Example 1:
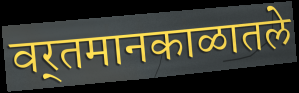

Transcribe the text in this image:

वर्तमानकाळातले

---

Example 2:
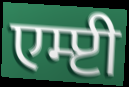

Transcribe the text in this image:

एम्प्टी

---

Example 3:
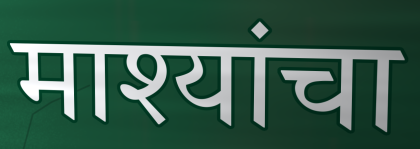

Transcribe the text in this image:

माश्यांचा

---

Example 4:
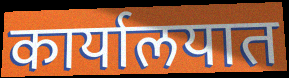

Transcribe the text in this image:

कार्यालयात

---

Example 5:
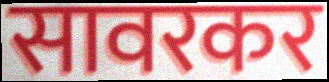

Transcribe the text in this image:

सावरकर